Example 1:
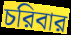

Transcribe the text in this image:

চরিবার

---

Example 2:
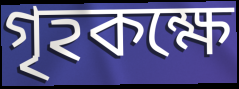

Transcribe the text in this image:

গৃহকক্ষে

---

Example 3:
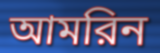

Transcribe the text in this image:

আমরিন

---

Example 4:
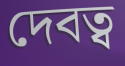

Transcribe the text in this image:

দেবত্ব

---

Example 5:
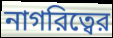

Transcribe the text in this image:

নাগরিত্বের